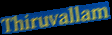
Thiruvallam